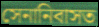
সেনানিবাসত